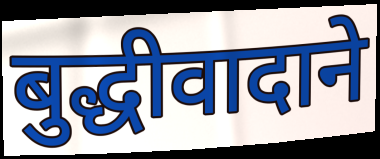
बुद्धीवादाने